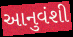
આનુવંશી